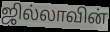
ஜில்லாவின்